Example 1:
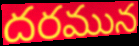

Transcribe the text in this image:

దరమున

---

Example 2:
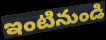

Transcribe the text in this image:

ఇంటినుండి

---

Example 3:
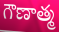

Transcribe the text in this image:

గౌణాత్మ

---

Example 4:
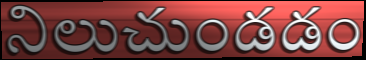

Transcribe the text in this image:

నిలుచుండడం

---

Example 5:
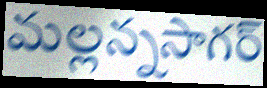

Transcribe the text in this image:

మల్లన్నసాగర్